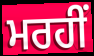
ਮਰਹੀਂ